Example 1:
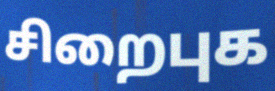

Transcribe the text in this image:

சிறைபுக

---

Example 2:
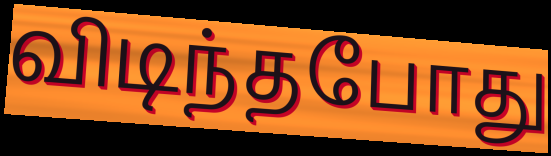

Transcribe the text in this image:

விடிந்தபோது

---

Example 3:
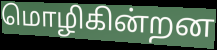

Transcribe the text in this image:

மொழிகின்றன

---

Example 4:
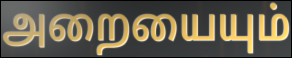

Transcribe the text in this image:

அறையையும்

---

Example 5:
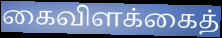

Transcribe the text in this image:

கைவிளக்கைத்